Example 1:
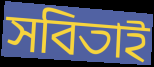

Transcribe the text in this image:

সবিতাই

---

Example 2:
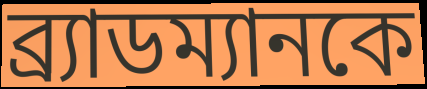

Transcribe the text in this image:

ব্র্যাডম্যানকে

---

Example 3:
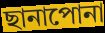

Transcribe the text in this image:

ছানাপোনা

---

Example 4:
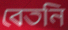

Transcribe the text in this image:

বেতনি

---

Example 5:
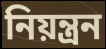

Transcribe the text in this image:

নিয়ন্ত্রন